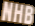
NHB